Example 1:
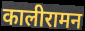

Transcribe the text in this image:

कालीरामन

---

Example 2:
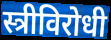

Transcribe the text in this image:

स्त्रीविरोधी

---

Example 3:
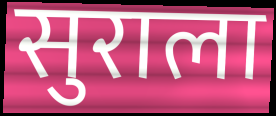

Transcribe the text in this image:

सुराला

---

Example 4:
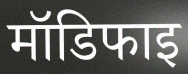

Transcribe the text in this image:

मॉडिफाइ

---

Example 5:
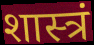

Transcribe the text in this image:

शास्त्रं